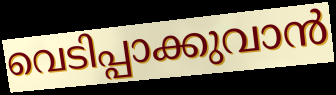
വെടിപ്പാക്കുവാൻ